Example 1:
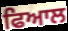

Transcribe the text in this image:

ਫਿਆਲ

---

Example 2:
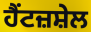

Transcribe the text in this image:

ਹੈਂਟਜ਼ਸ਼ੇਲ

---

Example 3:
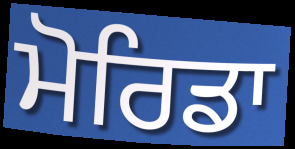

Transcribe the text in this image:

ਮੋਰਿਡਾ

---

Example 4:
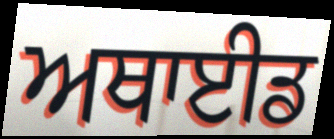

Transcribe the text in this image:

ਅਥਾਈਡ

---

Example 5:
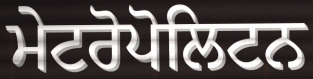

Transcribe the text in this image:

ਮੇਟਰੋਪੋਲਿਟਨ